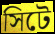
সিটে